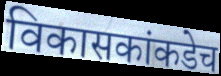
विकासकांकडेच